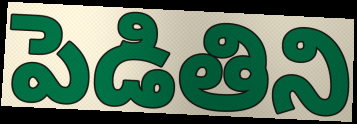
పెడితిని